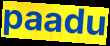
paadu